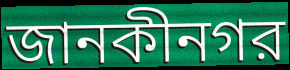
জানকীনগর